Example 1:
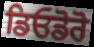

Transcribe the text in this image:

ਡਿਓਡੋਰੋ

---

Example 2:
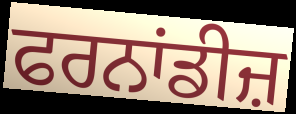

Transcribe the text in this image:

ਫਰਨਾਂਡੀਜ਼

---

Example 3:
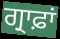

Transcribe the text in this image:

ਗ੍ਰਾਫ਼ਾਂ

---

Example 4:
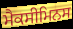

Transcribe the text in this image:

ਮੈਕਸੀਮਿਨਸ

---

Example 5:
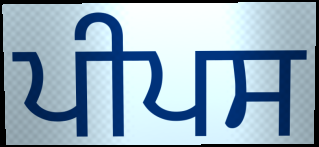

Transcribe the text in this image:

ਪੀਪਸ